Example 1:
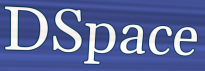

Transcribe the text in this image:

DSpace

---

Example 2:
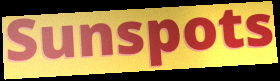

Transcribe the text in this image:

Sunspots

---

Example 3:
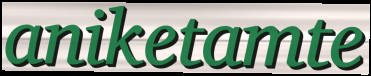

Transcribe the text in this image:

aniketamte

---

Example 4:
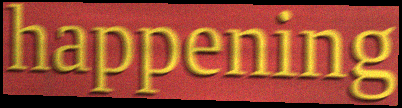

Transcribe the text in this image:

happening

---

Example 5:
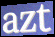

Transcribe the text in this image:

azt